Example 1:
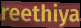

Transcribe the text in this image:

reethiya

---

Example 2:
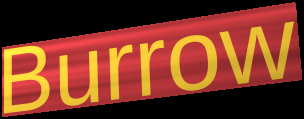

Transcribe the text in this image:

Burrow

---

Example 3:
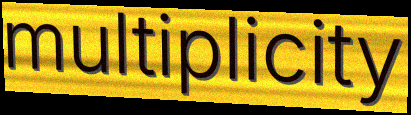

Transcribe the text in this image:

multiplicity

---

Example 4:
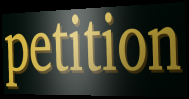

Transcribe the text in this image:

petition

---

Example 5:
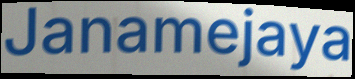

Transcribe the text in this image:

Janamejaya